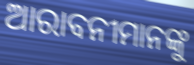
ଆରାବନୀମାନଙ୍କୁ